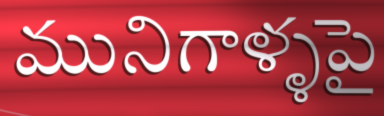
మునిగాళ్ళపై